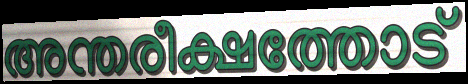
അന്തരീക്ഷത്തോട്